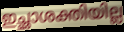
ഇച്ഛാശക്തിയില്ല